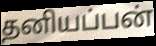
தனியப்பன்